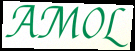
AMOL